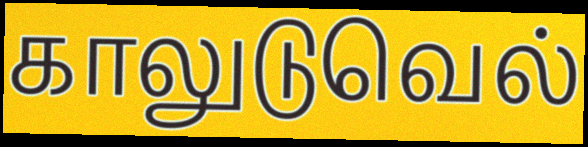
காலுடுவெல்